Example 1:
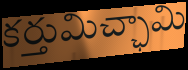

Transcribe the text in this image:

కర్తుమిచ్ఛామి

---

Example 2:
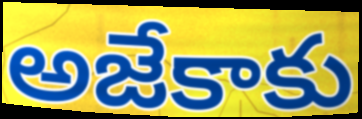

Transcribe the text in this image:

అజేకాకు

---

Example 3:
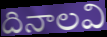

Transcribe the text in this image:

దినాలవి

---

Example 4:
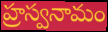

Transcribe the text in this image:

హ్రస్వనామం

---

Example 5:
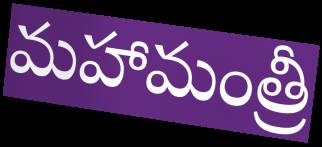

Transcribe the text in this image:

మహామంత్రీ